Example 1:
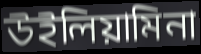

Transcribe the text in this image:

উইলিয়ামিনা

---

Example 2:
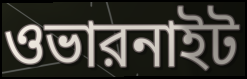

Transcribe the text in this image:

ওভারনাইট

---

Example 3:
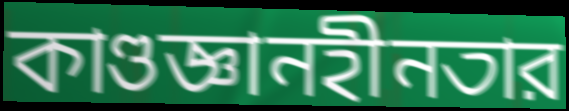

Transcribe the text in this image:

কাণ্ডজ্ঞানহীনতার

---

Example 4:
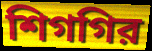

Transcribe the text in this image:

শিগগির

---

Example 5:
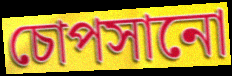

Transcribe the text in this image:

চোপসানো